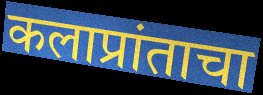
कलाप्रांताचा